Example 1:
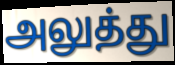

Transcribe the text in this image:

அலுத்து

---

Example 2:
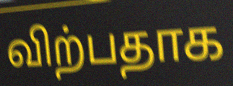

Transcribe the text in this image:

விற்பதாக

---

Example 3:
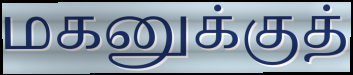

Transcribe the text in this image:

மகனுக்குத்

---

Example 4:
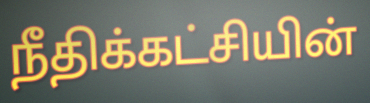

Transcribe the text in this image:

நீதிக்கட்சியின்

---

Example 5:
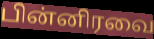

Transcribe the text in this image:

பின்னிரவை